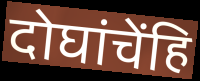
दोघांचेंहि